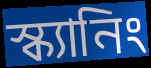
স্ক্যানিং